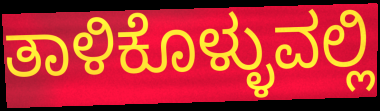
ತಾಳಿಕೊಳ್ಳುವಲ್ಲಿ